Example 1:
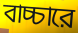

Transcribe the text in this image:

বাচ্চারে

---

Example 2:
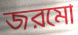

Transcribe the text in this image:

জরমো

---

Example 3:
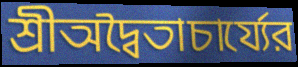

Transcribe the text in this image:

শ্রীঅদ্বৈতাচার্য্যের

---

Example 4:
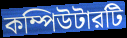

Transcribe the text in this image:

কম্পিউটারটি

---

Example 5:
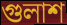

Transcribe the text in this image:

গুলাশ